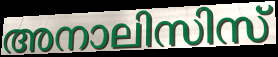
അനാലിസിസ്